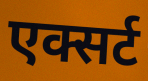
एक्सर्ट